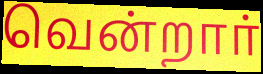
வென்றார்